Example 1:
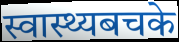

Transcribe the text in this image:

स्वास्थ्यबचके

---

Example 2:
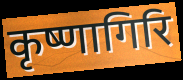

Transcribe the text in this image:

कृष्णागिरि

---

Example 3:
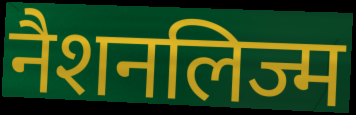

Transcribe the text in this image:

नैशनलिज्म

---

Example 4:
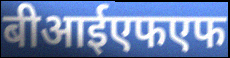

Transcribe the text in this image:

बीआईएफएफ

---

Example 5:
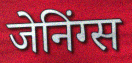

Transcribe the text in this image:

जेनिंग्स